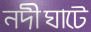
নদীঘাটে